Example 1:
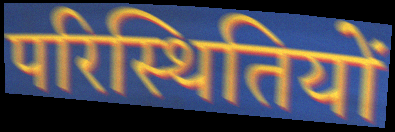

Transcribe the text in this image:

परिस्थितियों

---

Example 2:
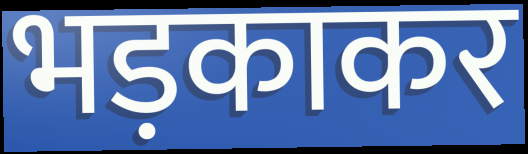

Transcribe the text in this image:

भड़काकर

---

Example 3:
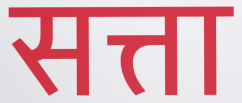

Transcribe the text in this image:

सत्ता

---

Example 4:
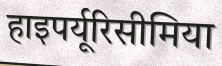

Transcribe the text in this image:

हाइपर्यूरिसीमिया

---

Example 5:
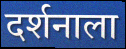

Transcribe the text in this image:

दर्शनाला